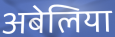
अबेलिया